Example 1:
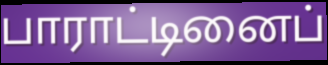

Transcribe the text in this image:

பாராட்டினைப்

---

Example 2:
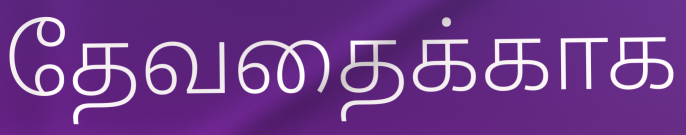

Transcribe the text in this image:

தேவதைக்காக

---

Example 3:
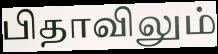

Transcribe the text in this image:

பிதாவிலும்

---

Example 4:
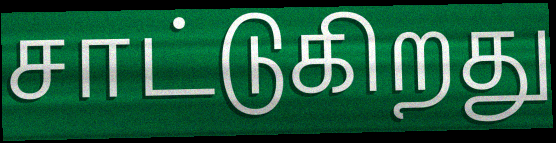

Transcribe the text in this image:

சாட்டுகிறது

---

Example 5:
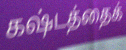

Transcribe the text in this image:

கஷ்டத்தைக்